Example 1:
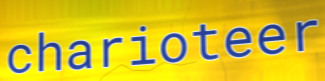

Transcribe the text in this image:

charioteer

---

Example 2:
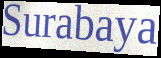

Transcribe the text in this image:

Surabaya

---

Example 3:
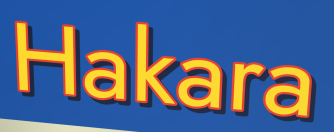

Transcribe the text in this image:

Hakara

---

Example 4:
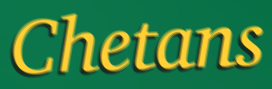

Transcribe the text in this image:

Chetans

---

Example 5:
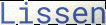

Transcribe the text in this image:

Lissen